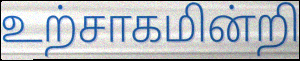
உற்சாகமின்றி